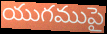
యుగముపై